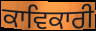
ਕਾਵਿਕਾਰੀ